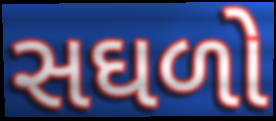
સઘળો